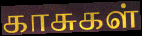
காசுகள்